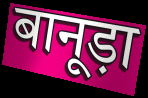
बानूड़ा